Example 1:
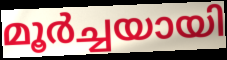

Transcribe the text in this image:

മൂർച്ചയായി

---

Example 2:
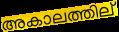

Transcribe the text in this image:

അകാലത്തില്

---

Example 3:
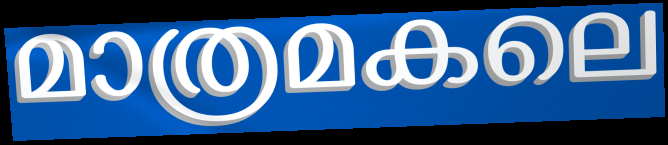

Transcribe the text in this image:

മാത്രമകലെ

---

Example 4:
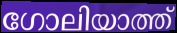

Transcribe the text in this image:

ഗോലിയാത്ത്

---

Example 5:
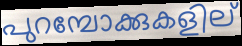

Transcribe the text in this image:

പുറമ്പോക്കുകളില്